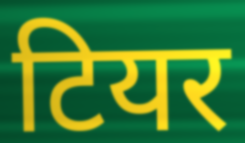
टियर